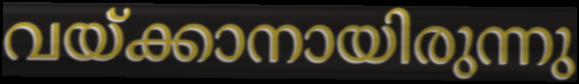
വയ്ക്കാനായിരുന്നു